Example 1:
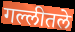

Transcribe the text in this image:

गल्लीतले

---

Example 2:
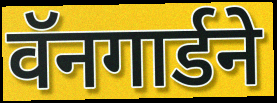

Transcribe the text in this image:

वॅनगार्डने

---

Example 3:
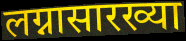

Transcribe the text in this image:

लग्नासारख्या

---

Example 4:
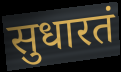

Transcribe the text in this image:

सुधारतं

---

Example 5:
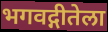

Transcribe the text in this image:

भगवद्गीतेला